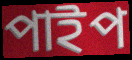
পাইপ